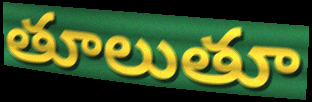
తూలుతూ